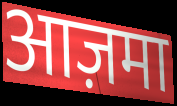
आज़मा